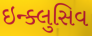
ઇન્ક્લુસિવ